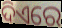
ଦିଏରେ